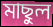
মাছুল